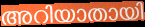
അറിയാതായി